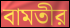
বামতীর